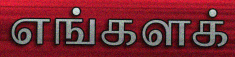
எங்களக்